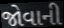
જોવાની